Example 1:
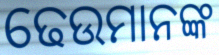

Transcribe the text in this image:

ଢେଉମାନଙ୍କ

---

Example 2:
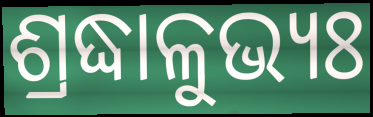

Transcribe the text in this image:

ଶ୍ରଦ୍ଧାଳୁଭ୍ୟଃ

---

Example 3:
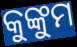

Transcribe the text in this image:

କୁଙ୍କୁମ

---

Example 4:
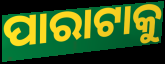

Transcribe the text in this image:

ପାରାଟାକୁ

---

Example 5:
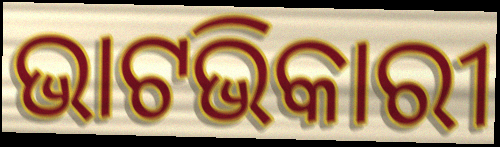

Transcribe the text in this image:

ଭାଟଭିକାରୀ